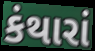
કંથારાં